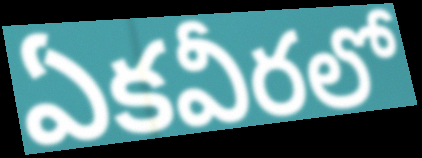
ఏకవీరలో